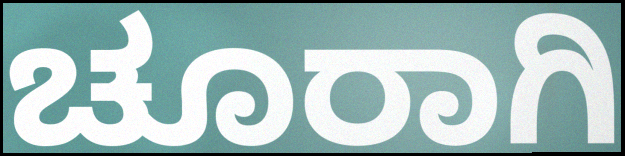
ಚೂರಾಗಿ